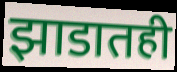
झाडातही